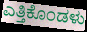
ಎತ್ತಿಕೊಂಡಳು